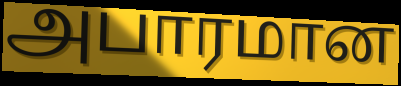
அபாரமான